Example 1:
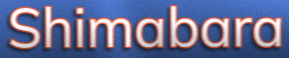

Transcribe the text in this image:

Shimabara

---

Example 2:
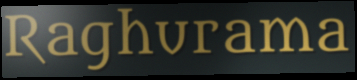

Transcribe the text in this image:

Raghurama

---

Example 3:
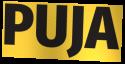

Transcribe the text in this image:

PUJA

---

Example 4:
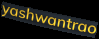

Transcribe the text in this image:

yashwantrao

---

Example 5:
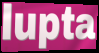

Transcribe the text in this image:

lupta